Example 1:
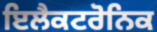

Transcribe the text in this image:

ਇਲੈਕਟਰੋਨਿਕ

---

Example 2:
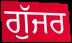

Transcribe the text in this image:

ਗੁੱਜਰ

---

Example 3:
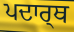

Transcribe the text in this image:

ਪਦਾਰ੍ਥ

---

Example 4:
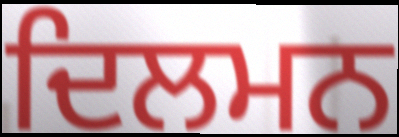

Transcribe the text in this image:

ਦਿਲਮਨ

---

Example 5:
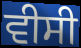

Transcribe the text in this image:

ਵੀਸੀ